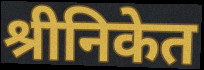
श्रीनिकेत